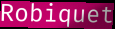
Robiquet